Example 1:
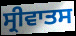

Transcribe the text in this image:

ਸ੍ਰੀਵਾਤਸ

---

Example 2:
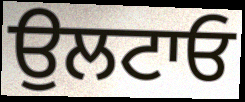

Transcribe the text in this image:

ਉਲਟਾਓ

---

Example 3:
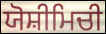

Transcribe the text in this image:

ਯੋਸ਼ੀਮਿਚੀ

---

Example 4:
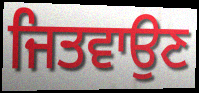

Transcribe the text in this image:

ਜਿਤਵਾਉਣ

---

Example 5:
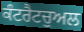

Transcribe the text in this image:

ਕੰਟਰੈਟਚੁਅਲ